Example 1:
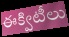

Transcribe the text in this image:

ఈక్విటీలు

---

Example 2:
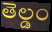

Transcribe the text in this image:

తెల్డం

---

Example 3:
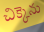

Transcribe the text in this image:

చిక్కెను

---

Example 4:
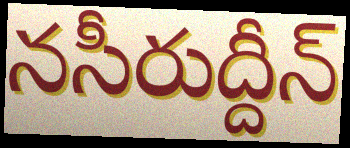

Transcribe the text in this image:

నసీరుద్దీన్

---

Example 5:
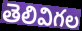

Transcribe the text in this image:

తెలివిగల